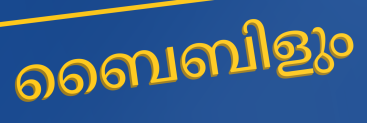
ബൈബിളും